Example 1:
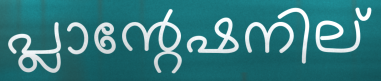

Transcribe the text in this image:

പ്ലാന്റേഷനില്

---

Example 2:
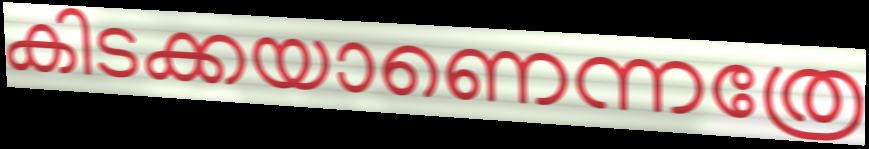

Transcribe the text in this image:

കിടക്കയാണെന്നത്രേ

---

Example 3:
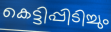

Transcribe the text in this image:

കെട്ടിപ്പിടിച്ചും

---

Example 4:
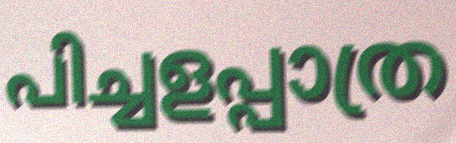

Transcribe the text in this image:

പിച്ചളപ്പാത്ര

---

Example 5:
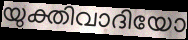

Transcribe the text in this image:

യുക്തിവാദിയോ